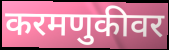
करमणुकीवर